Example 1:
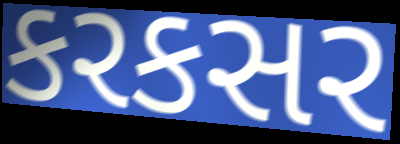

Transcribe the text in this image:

કરકસર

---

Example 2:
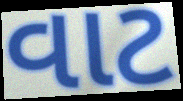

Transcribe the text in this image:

વાટ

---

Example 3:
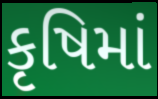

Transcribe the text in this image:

કૃષિમાં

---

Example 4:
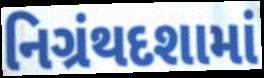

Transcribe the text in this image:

નિગ્રંથદશામાં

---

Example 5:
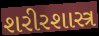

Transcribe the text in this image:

શરીરશાસ્ત્ર